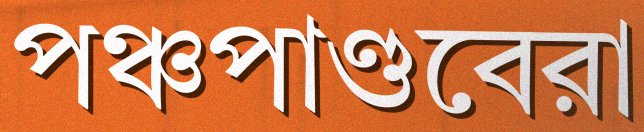
পঞ্চপাণ্ডবেরা